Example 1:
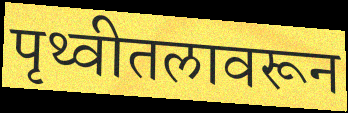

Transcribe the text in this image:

पृथ्वीतलावरून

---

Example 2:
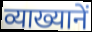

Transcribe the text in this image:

व्याख्यानें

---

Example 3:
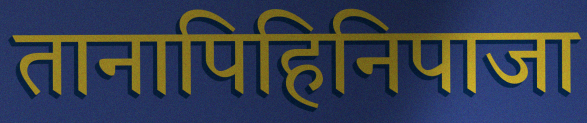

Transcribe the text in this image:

तानापिहिनिपाजा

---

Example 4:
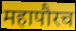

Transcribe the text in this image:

महापौरच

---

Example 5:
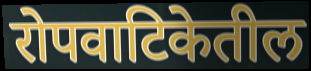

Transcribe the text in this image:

रोपवाटिकेतील